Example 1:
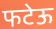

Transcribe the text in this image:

फटेऊ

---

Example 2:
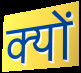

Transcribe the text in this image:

क्यों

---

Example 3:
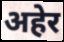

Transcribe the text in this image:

अहेर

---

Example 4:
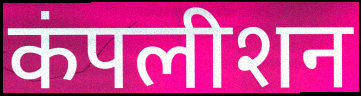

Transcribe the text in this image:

कंपलीशन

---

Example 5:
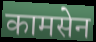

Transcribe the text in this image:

कामसेन